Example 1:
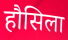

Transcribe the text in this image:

हौसिला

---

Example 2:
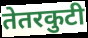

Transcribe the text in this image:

तेतरकुटी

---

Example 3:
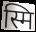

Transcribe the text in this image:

स्मि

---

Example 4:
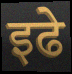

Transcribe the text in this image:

इढे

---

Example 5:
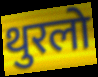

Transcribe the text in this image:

थुरलो